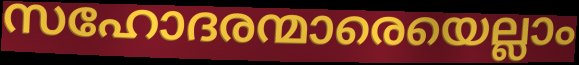
സഹോദരന്മാരെയെല്ലാം